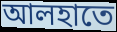
আলহাতে